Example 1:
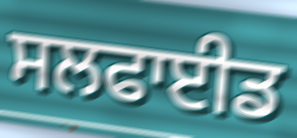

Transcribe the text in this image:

ਸਲਫਾਈਡ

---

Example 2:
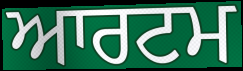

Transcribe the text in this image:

ਆਰਟਮ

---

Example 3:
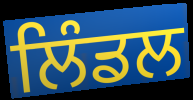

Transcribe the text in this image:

ਲਿੰਡਲ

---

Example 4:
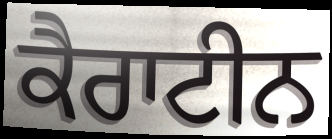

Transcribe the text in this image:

ਕੈਰਾਟੀਨ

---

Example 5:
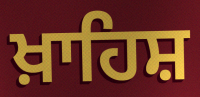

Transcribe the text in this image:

ਖ਼ਾਹਿਸ਼